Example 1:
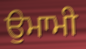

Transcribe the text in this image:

ਉਮਾਮੀ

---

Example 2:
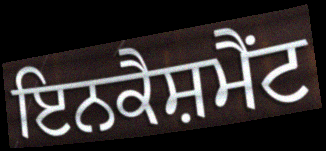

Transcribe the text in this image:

ਇਨਕੈਸ਼ਮੈਂਟ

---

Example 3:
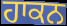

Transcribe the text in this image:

ਹਾਕਨ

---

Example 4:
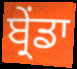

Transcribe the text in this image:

ਬ੍ਰੇਂਡਾ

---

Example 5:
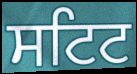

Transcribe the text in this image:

ਸਟਿਟ